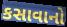
કસાવાનો